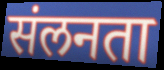
संलनता